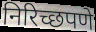
निरिच्छपणे